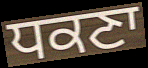
ਧਕਣਾ